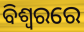
ବିଶ୍ବରରେ